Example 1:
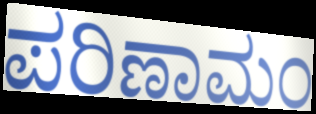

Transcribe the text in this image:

ಪರಿಣಾಮಂ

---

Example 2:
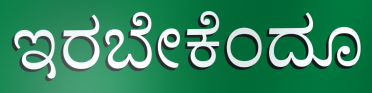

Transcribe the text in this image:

ಇರಬೇಕೆಂದೂ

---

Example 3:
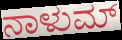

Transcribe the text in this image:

ನಾಳುಮ್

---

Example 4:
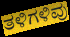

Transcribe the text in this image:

ತಳಿಗಳಿವು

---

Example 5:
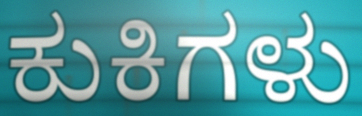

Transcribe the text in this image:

ಕುಕಿಗಳು